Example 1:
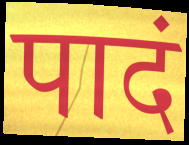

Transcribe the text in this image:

पादं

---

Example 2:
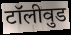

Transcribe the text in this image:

टॉलीवुड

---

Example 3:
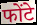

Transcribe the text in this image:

फोंटे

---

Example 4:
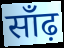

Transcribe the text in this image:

साँढ़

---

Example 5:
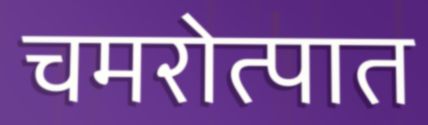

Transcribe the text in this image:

चमरोत्पात